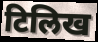
टिलिख